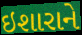
ઇશારાને